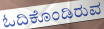
ಓದಿಕೊಂಡಿರುವ